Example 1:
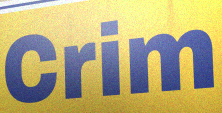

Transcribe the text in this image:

Crim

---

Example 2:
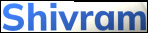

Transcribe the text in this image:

Shivram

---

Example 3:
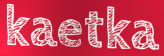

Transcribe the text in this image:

kaetka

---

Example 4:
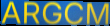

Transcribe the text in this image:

ARGCM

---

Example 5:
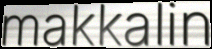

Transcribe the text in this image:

makkalin